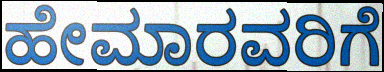
ಹೇಮಾರವರಿಗೆ